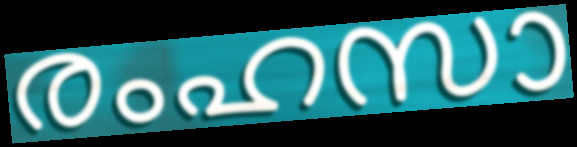
രംഹസാ